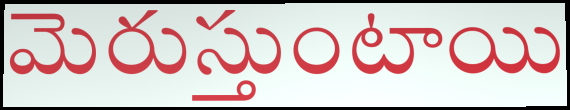
మెరుస్తుంటాయి